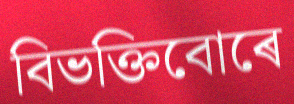
বিভক্তিবোৰে